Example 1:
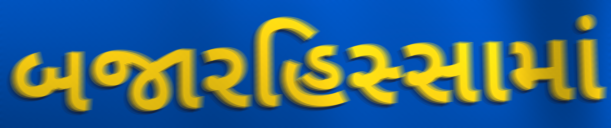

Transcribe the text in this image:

બજારહિસ્સામાં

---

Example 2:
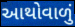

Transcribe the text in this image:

આથોવાળું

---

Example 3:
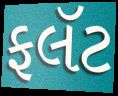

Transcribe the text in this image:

ફલૅટ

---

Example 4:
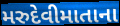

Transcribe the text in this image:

મરુદેવીમાતાના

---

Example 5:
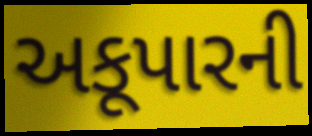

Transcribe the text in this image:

અકૂપારની